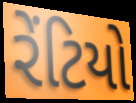
રેંટિયો